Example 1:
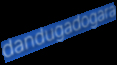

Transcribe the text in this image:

dandugadogara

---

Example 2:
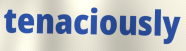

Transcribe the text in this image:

tenaciously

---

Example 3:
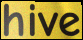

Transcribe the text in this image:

hive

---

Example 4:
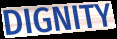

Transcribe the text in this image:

DIGNITY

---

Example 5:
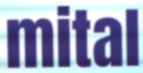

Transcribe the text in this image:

mital